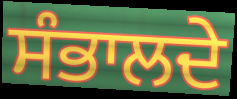
ਸੰਭਾਲਦੇ